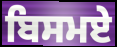
ਬਿਸਮਏ